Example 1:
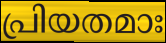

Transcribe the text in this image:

പ്രിയതമാഃ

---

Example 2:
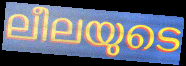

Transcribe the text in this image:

ലീലയുടെ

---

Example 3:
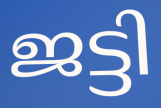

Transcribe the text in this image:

ജട്ടി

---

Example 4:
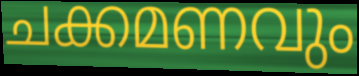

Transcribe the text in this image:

ചക്കമണവും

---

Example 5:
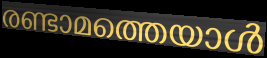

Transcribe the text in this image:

രണ്ടാമത്തെയാൾ